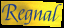
Regnal